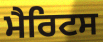
ਮੈਰਿਟਸ